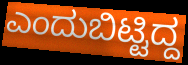
ಎಂದುಬಿಟ್ಟಿದ್ದ